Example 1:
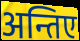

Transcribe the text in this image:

अन्तिए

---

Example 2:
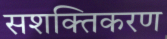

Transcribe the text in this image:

सशक्तिकरण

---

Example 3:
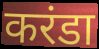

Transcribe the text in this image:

करंडा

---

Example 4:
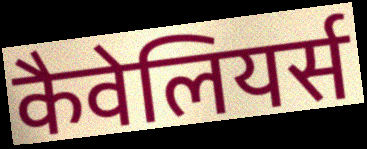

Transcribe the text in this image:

कैवेलियर्स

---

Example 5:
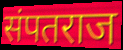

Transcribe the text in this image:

संपतराज